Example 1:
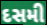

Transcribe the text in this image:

દસમી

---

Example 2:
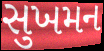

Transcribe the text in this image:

સુખમન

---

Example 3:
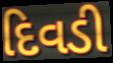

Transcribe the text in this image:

દિવડી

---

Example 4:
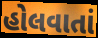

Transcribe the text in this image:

હોલવાતાં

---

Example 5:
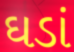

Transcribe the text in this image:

ઘડાં